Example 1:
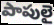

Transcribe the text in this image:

పాపులై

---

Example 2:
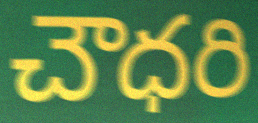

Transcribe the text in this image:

చౌధరి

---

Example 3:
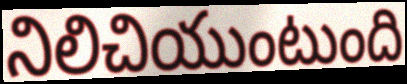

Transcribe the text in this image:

నిలిచియుంటుంది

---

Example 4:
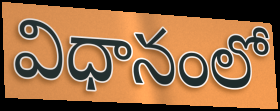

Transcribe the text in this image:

విధానంలో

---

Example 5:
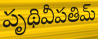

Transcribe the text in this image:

పృథివీపతిమ్